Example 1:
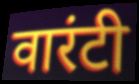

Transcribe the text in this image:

वारंटी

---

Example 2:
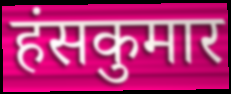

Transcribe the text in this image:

हंसकुमार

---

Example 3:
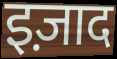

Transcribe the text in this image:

इज़ाद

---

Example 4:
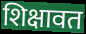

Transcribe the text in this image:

शिक्षावत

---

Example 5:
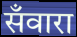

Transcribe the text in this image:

सँवारा